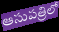
ఆసుపత్రిలో